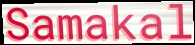
Samakal